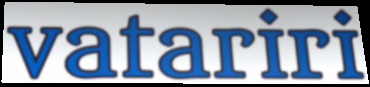
vatariri